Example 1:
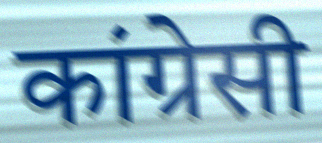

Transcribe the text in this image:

कांग्रेसी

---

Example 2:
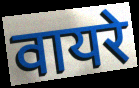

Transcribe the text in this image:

वायरे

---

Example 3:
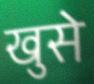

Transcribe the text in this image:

खुसे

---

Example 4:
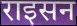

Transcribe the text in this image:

राइसन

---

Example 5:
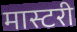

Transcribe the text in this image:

मास्टरी